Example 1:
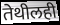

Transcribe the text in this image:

तेथीलही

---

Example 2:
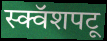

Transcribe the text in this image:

स्क्वॅशपटू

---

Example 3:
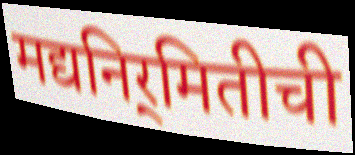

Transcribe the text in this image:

मद्यनिर्मितीची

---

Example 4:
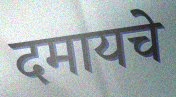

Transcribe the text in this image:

दमायचे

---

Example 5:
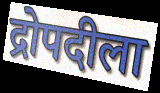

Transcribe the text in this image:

द्रोपदीला